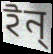
ইন্